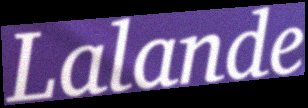
Lalande